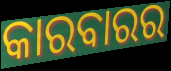
କାରବାରର